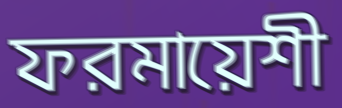
ফরমায়েশী